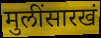
मुलींसारखं